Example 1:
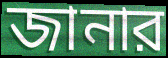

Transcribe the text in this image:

জানার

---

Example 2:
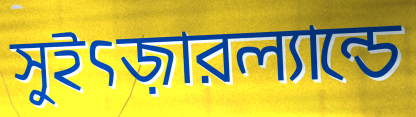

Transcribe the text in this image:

সুইৎজ়ারল্যান্ডে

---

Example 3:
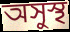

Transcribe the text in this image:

অসুস্থ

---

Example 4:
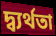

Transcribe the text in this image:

দ্ব্যর্থতা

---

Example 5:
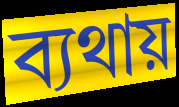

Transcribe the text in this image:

ব্যথায়